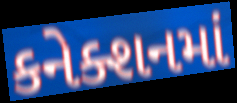
કનેક્શનમાં